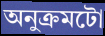
অনুক্ৰমটো